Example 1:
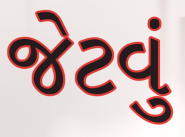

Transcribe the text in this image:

જેટવું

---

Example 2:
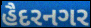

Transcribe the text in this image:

હૈદરનગર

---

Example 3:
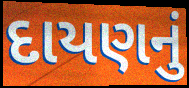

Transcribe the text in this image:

દાયણનું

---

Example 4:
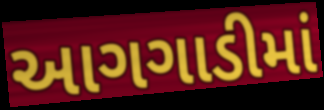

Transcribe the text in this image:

આગગાડીમાં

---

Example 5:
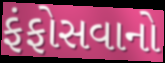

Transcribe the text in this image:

ફંફોસવાનો